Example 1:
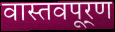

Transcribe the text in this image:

वास्तवपूर्ण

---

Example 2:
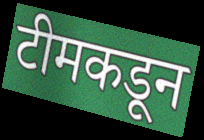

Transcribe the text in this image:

टीमकडून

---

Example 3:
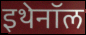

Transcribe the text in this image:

इथेनॉल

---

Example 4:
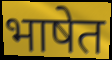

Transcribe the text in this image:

भाषेत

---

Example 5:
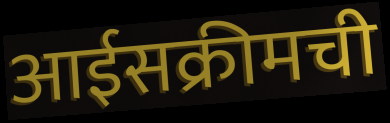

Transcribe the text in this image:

आईसक्रीमची